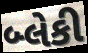
બ્લેકી